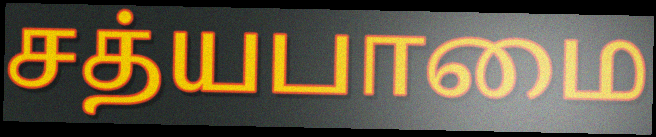
சத்யபாமை